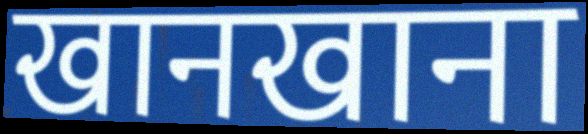
खानखाना